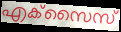
എക്‌സൈസ്